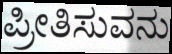
ಪ್ರೀತಿಸುವನು